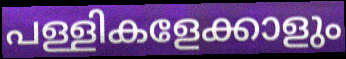
പള്ളികളേക്കാളും